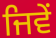
ਜਿਵੇਂ